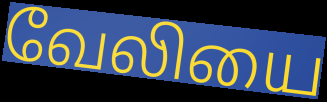
வேலியை